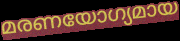
മരണയോഗ്യമായ